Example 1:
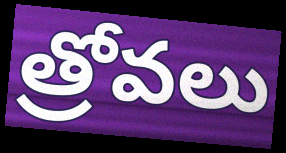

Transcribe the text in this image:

త్రోవలు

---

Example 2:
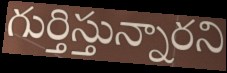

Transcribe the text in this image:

గుర్తిస్తున్నారని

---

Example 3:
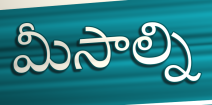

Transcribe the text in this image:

మీసాల్ని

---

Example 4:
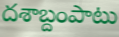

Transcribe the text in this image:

దశాబ్దంపాటు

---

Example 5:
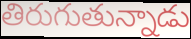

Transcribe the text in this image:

తిరుగుతున్నాడు